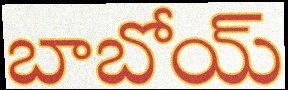
బాబోయ్